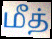
மீத்